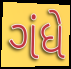
ગંધે